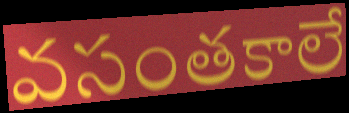
వసంతకాలే